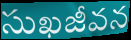
సుఖజీవన